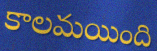
కాలమయింది